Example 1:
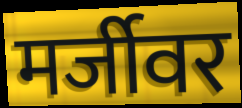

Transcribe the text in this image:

मर्जीवर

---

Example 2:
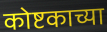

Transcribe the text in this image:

कोष्टकाच्या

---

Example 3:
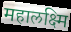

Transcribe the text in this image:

महालक्ष्मि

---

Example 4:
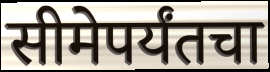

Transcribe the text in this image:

सीमेपर्यंतचा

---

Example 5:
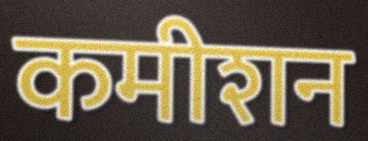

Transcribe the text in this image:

कमीशन